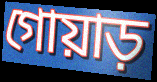
গোয়াড়